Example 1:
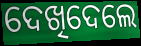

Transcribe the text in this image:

ଦେଖିଦେଲେ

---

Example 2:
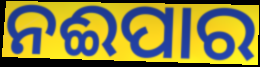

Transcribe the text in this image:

ନଈପାର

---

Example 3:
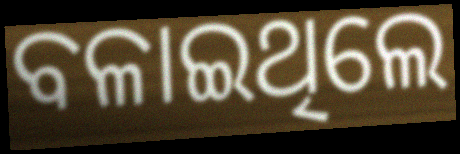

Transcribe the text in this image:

ବଳାଇଥିଲେ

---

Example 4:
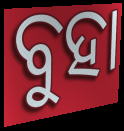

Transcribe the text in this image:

ବୁହା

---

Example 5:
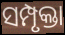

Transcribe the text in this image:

ସମ୍ପୃକ୍ତା